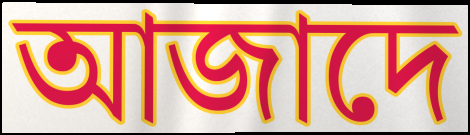
আজাদে